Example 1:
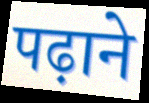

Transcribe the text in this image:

पढ़ाने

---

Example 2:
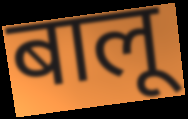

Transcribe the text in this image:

बालू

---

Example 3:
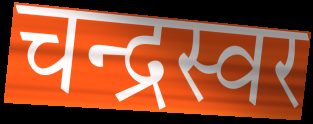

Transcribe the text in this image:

चन्द्रस्वर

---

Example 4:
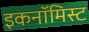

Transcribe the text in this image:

इकनॉमिस्‍ट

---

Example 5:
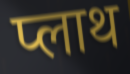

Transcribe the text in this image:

प्लाथ